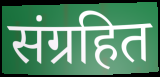
संग्रहित